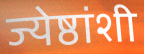
ज्येष्ठांशी